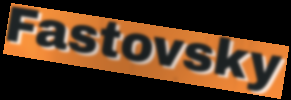
Fastovsky